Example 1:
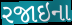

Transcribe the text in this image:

રજાઇના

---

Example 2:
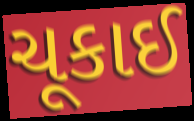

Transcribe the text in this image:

ચૂકાઈ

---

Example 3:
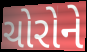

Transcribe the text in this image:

ચોરોને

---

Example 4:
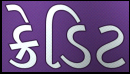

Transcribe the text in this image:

ક્રેડિટ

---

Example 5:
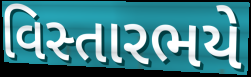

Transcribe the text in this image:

વિસ્તારભયે